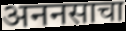
अननसाचा